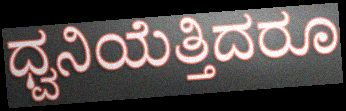
ಧ್ವನಿಯೆತ್ತಿದರೂ